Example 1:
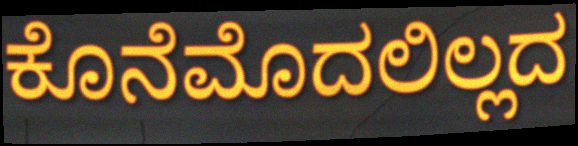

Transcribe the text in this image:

ಕೊನೆಮೊದಲಿಲ್ಲದ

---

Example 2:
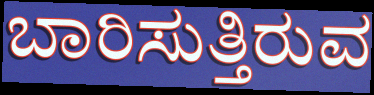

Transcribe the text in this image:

ಬಾರಿಸುತ್ತಿರುವ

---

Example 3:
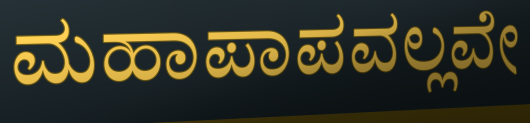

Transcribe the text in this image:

ಮಹಾಪಾಪವಲ್ಲವೇ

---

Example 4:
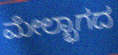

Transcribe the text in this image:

ಮೇಲ್ಭಾಗದ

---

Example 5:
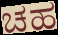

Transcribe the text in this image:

ಚಹ